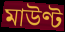
মাউণ্ট